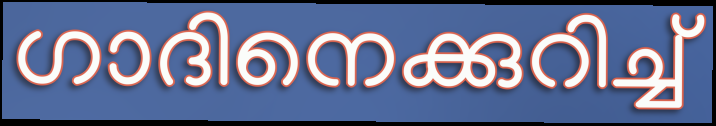
ഗാദിനെക്കുറിച്ച്